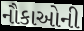
નૌકાઓની